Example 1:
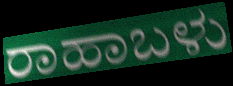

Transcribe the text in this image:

ರಾಹಾಬಳು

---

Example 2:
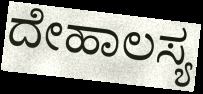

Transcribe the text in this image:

ದೇಹಾಲಸ್ಯ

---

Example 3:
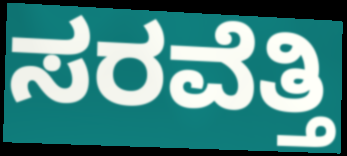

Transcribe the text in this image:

ಸರವೆತ್ತಿ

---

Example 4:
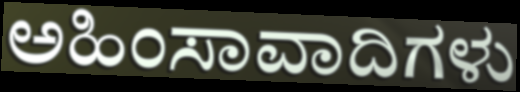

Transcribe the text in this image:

ಅಹಿಂಸಾವಾದಿಗಳು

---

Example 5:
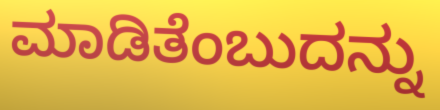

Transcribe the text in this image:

ಮಾಡಿತೆಂಬುದನ್ನು